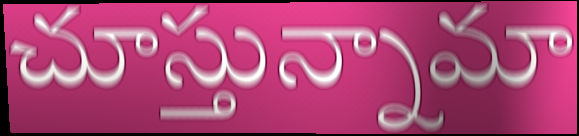
చూస్తున్నామా